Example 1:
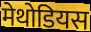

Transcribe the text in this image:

मेथोडियस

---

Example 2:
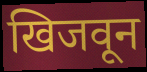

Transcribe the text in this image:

खिजवून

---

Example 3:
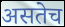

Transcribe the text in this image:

असतेच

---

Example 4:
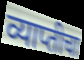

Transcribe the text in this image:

व्याप्तीचा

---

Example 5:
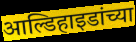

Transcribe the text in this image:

आल्डिहाइडांच्या